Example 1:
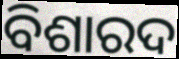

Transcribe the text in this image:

ବିଶାରଦ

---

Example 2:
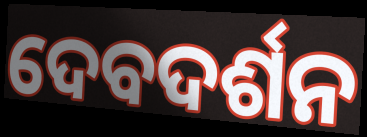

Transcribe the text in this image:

ଦେବଦର୍ଶନ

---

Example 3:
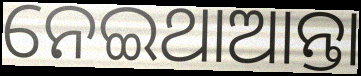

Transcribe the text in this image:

ନେଇଥାଆନ୍ତା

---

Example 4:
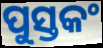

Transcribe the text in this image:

ପୁସ୍ତକଂ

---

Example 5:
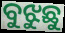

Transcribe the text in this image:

ବୁଝୁଛୁ